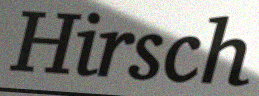
Hirsch